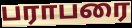
பராபரை